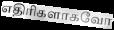
எதிரிகளாகவோ